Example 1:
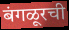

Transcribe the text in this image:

बंगळूरची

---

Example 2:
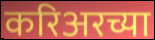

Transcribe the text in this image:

करिअरच्या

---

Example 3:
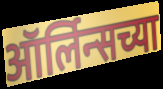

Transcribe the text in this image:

ऑर्लिन्सच्या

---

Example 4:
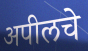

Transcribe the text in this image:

अपीलचे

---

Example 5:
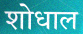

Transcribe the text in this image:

शोधाल